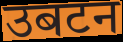
उबटन